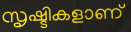
സൃഷ്ടികളാണ്